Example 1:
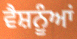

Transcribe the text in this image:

ਵੈਸ਼ਨੂੰਆਂ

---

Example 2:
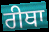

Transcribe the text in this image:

ਰੀਥਾ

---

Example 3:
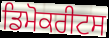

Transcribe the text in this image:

ਡਿਮੋਕਰੀਟਸ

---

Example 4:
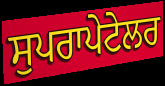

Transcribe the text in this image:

ਸੁਪਰਾਪੇਟੇਲਰ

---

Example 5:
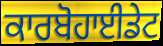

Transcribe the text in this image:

ਕਾਰਬੋਹਾਈਡੇਟ